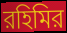
রহিমির